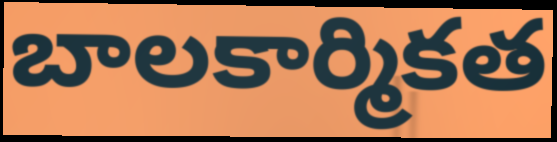
బాలకార్మికత